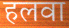
हलवा